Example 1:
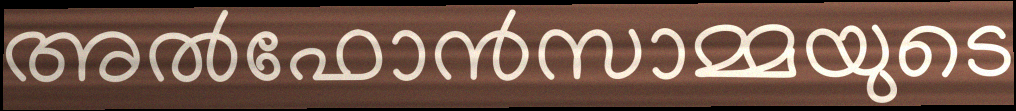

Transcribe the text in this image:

അൽഫോൻസാമ്മയുടെ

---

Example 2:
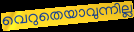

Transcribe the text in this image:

വെറുതെയാവുന്നില്ല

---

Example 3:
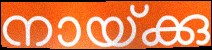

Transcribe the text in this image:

നായ്‌ക്കു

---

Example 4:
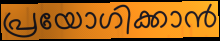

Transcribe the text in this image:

പ്രയോഗിക്കാൻ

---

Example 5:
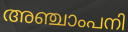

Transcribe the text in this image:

അഞ്ചാംപനി